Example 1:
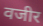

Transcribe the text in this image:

वजीर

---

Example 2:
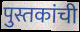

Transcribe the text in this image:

पुस्तकांची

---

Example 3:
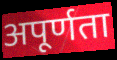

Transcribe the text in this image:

अपूर्णता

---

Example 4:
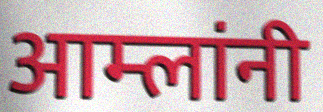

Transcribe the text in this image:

आम्लांनी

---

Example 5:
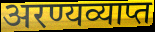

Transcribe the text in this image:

अरण्यव्याप्त